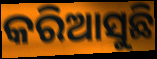
କରିଆସୁଛି